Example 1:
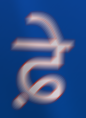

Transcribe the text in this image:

ਫ਼ੇ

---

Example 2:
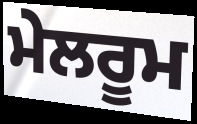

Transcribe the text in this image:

ਮੇਲਰੂਮ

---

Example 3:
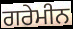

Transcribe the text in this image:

ਗਰੇਮੀਨ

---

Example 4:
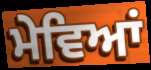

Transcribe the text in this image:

ਮੇਵਿਆਂ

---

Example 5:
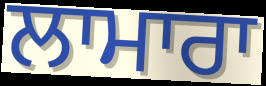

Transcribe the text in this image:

ਲਾਮਾਰਾ